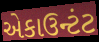
એકાઉન્ટંટ